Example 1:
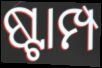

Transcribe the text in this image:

ଷ୍ଟାମ୍ପ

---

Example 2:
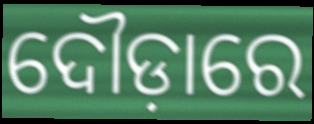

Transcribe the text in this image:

ଦୌଡ଼ାରେ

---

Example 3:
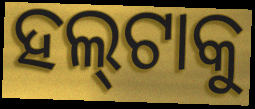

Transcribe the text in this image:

ହଲ୍‌ଟାକୁ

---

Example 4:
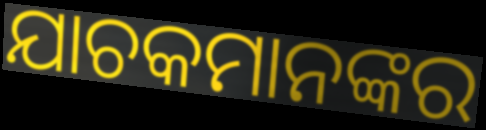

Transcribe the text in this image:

ଯାଚକମାନଙ୍କର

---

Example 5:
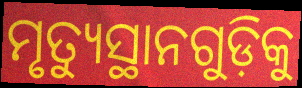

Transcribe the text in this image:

ମୃତ୍ୟୁସ୍ଥାନଗୁଡ଼ିକୁ